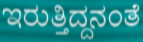
ಇರುತ್ತಿದ್ದನಂತೆ